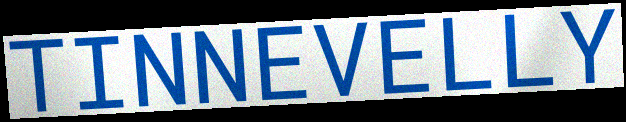
TINNEVELLY